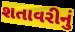
શતાવરીનું